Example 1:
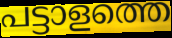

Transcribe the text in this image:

പട്ടാളത്തെ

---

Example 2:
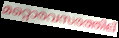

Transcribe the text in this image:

മറ്റൊരവസരത്തില്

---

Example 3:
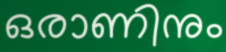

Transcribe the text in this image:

ഒരാണിനും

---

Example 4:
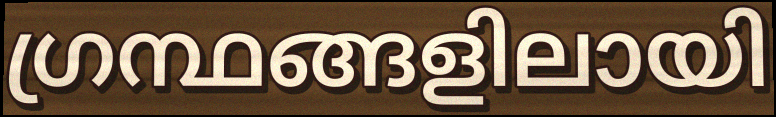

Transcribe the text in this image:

ഗ്രന്ഥങ്ങളിലായി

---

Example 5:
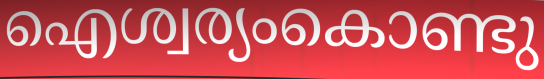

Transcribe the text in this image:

ഐശ്വര്യംകൊണ്ടു